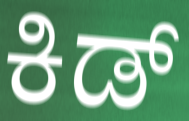
ಕಿಡ್